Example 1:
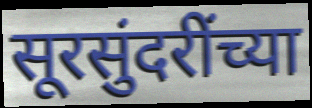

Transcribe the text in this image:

सूरसुंदरींच्या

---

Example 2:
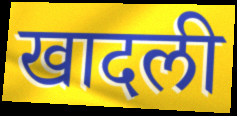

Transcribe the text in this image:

खादली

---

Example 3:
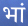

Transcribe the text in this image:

भां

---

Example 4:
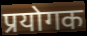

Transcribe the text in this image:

प्रयोगक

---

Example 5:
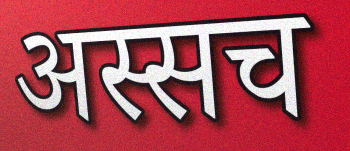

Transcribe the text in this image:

अस्सच